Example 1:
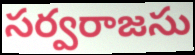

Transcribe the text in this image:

సర్వరాజసు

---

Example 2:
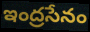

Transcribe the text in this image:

ఇంద్రసేనం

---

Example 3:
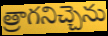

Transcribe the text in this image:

త్రాగనిచ్చెను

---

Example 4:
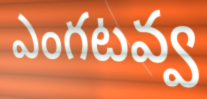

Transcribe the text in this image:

ఎంగటవ్వ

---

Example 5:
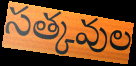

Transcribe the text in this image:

సత్కవుల